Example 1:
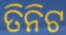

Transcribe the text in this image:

ତିନିଟ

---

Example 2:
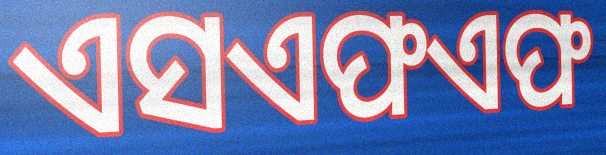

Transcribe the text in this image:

ଏସଏଫଏଫ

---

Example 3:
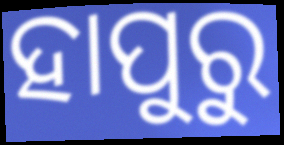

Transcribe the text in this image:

ହାପୁରୁ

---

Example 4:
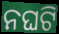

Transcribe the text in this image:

ନଘଟି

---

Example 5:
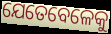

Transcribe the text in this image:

ଯେତେବେଳେକୁ